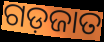
ଗଡ଼ଜାତ